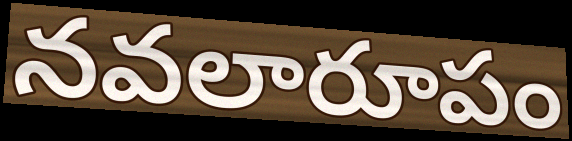
నవలారూపం